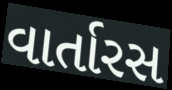
વાર્તારસ